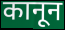
कानून